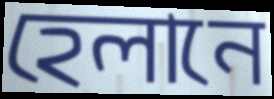
হেলানে